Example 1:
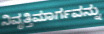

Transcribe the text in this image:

ನಿವೃತ್ತಿಮಾರ್ಗವನ್ನು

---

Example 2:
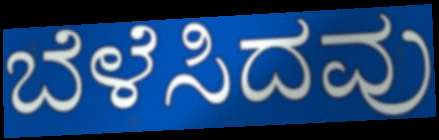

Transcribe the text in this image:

ಬೆಳೆಸಿದವು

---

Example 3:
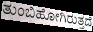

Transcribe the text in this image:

ತುಂಬಿಹೋಗಿರುತ್ತದೆ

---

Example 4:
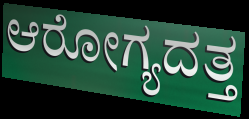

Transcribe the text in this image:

ಆರೋಗ್ಯದತ್ತ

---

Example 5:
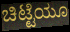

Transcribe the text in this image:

ಚಿಟ್ಟೆಯೂ